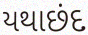
યથાછંદ